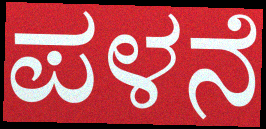
ಪಳನೆ